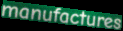
manufactures